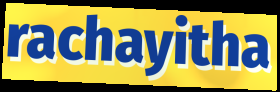
rachayitha